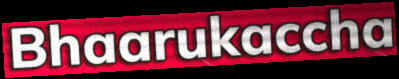
Bhaarukaccha